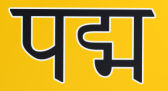
पद्म